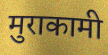
मुराकामी